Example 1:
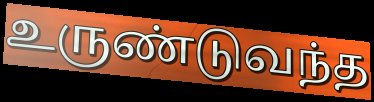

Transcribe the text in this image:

உருண்டுவந்த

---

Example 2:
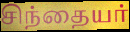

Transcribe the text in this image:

சிந்தையர்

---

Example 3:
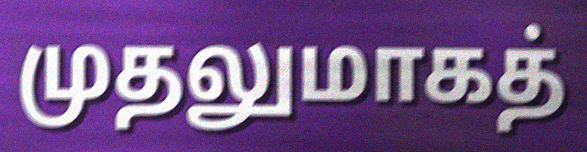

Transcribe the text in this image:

முதலுமாகத்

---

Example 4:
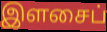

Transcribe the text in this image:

இளசைப்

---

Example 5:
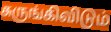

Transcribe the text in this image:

சுருங்கிவிடும்